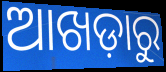
ଆଖଡ଼ାରୁ